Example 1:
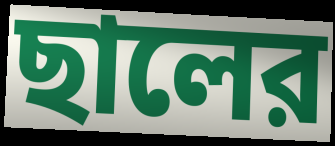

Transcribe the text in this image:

ছালের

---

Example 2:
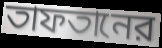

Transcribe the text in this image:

তাফতানের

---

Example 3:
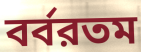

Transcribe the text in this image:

বর্বরতম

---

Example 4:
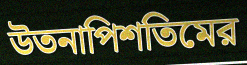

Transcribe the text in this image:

উতনাপিশতিমের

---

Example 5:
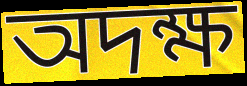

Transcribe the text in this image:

অদক্ষ